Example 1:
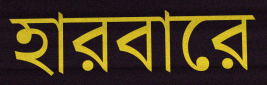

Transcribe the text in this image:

হারবারে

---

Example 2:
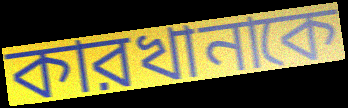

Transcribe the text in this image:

কারখানাকে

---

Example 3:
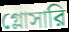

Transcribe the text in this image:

গ্লোসারি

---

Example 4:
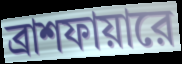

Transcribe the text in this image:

ব্রাশফায়ারে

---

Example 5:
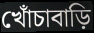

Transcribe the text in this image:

খোঁচাবাড়ি